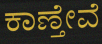
ಕಾಣ್ತೇವೆ